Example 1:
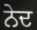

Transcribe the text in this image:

ਨੇਦ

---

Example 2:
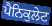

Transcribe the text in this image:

ਪੈਨਿਕੁਲੇਟ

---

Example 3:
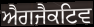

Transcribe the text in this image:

ਐਗਜੈਕਟਿਵ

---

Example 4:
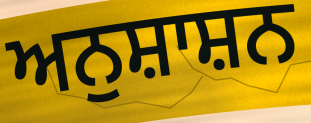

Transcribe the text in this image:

ਅਨੁਸ਼ਾਸ਼ਨ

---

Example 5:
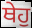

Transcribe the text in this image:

ਥੇਹੁ